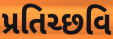
પ્રતિચ્છવિ